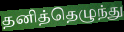
தனித்தெழுந்து